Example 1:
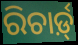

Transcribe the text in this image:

ରିଚାର୍ଡ଼୍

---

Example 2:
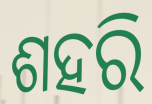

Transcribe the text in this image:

ଶହରି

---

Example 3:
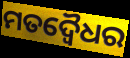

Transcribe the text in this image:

ମତଦ୍ୱୈଧର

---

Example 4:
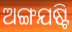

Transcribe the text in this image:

ଅଙ୍ଗଯଷ୍ଟି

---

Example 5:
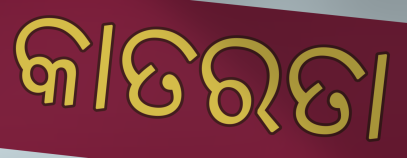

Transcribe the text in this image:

କାତରତା